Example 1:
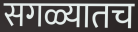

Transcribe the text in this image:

सगळ्यातच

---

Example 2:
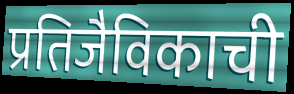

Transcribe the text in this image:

प्रतिजैविकाची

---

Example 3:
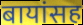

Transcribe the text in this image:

बायांसह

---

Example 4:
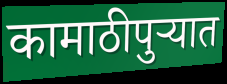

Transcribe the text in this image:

कामाठीपुर्‍यात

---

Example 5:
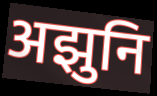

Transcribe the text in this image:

अझुनि